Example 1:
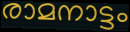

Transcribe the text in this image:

രാമനാട്ടം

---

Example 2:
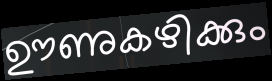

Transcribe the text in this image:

ഊണുകഴിക്കും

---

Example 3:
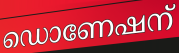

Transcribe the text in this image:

ഡൊണേഷന്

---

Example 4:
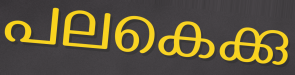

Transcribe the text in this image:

പലകെക്കു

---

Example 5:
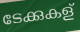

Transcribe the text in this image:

ടേക്കുകള്